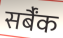
सर्बैंक